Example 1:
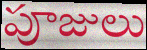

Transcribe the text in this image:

పూజులు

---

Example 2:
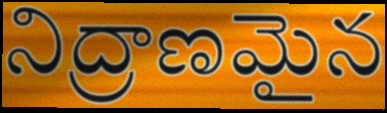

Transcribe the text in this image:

నిద్రాణమైన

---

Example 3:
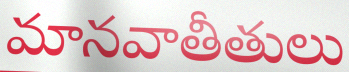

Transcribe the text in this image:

మానవాతీతులు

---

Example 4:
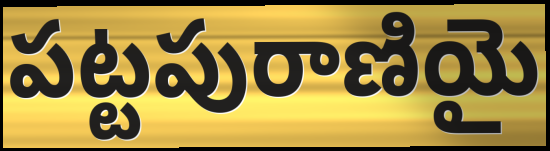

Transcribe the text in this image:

పట్టపురాణియై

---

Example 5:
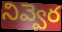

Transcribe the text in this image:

నివ్వెర